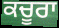
ਕਚੂਰਾ